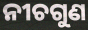
ନୀଚଗୁଣ